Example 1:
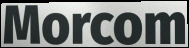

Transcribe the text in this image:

Morcom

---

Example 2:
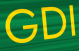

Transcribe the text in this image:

GDI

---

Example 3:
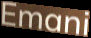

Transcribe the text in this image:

Emani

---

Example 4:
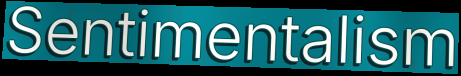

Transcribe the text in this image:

Sentimentalism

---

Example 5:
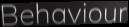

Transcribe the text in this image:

Behaviour